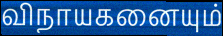
விநாயகனையும்